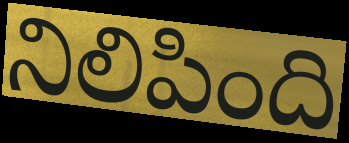
నిలిపింది